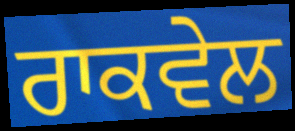
ਰਾਕਵੇਲ